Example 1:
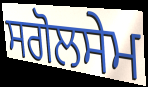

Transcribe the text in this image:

ਸਗੋਲਸੇਮ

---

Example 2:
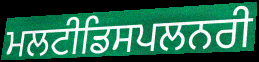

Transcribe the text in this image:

ਮਲਟੀਡਿਸਪਲਨਰੀ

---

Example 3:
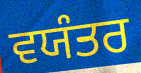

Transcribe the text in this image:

ਵਯੰਤਰ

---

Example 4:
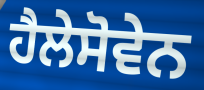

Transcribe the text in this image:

ਹੈਲੇਸੋਵੇਨ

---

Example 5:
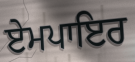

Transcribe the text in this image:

ਏਮਪਾਇਰ